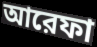
আরেফা